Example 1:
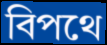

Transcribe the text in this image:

বিপথে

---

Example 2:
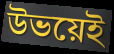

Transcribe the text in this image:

উভয়েই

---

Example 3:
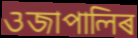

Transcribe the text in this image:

ওজাপালিৰ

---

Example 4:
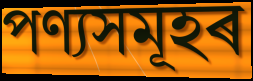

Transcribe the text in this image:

পণ্যসমূহৰ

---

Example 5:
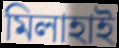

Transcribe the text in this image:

মিলাহাই